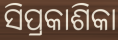
ସିପ୍ରକାଶିକା